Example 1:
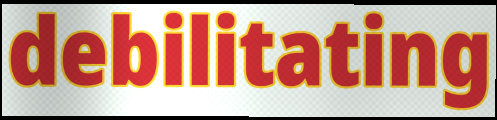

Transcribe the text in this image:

debilitating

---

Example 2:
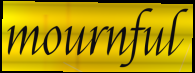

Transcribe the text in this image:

mournful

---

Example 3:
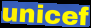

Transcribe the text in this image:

unicef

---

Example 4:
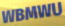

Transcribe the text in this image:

WBMWU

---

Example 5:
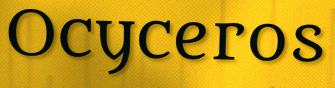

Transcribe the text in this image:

Ocyceros